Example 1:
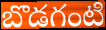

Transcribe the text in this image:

బొడగంటి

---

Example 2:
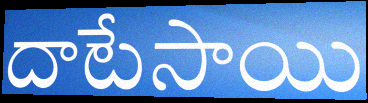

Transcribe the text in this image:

దాటేసాయి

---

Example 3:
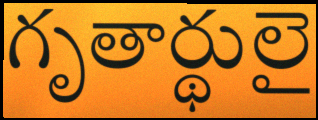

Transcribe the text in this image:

గృతార్థులై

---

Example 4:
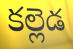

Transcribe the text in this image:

కల్లెడ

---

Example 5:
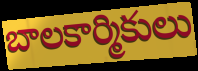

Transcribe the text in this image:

బాలకార్మికులు